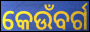
କେଉଁବର୍ଗ